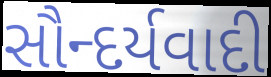
સૌન્દર્યવાદી